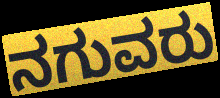
ನಗುವರು